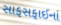
સાફસફાઈનાં